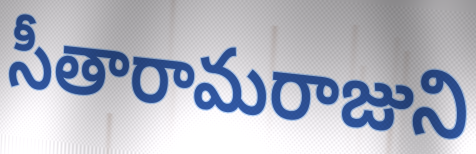
సీతారామరాజుని